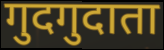
गुदगुदाता